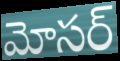
మోసర్